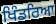
ਖਿੰਡਰਿਆ